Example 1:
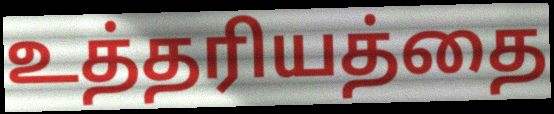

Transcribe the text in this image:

உத்தரியத்தை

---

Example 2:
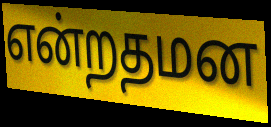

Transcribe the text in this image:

என்றதமன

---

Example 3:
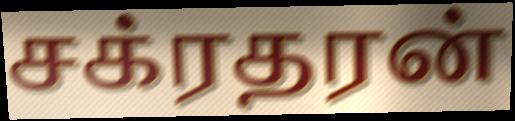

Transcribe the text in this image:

சக்ரதரன்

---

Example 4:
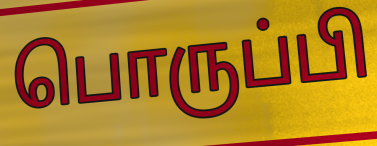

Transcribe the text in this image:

பொருப்பி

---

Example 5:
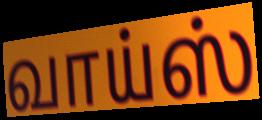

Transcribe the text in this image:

வாய்ஸ்